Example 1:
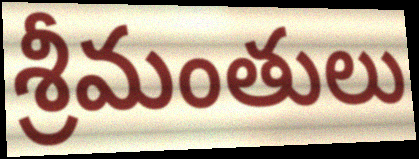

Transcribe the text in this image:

శ్రీమంతులు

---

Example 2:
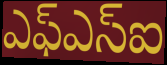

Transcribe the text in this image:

ఎఫ్ఎస్ఐ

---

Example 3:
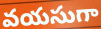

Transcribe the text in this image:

వయసుగా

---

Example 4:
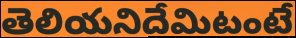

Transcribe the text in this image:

తెలియనిదేమిటంటే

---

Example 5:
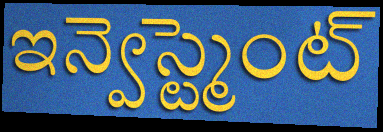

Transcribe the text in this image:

ఇన్వెస్ట్మెంట్